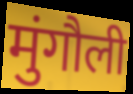
मुंगौली